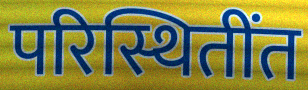
परिस्थितींत